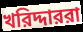
খরিদ্দাররা